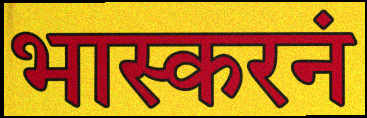
भास्करनं